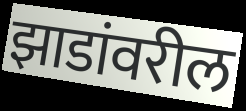
झाडांवरील